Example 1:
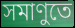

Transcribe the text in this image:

সমাণুতে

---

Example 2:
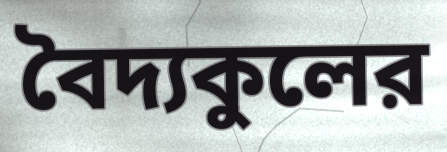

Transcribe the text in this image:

বৈদ্যকুলের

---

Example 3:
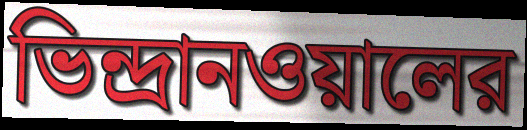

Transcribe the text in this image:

ভিন্দ্রানওয়ালের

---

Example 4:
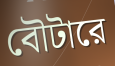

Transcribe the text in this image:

বৌটারে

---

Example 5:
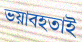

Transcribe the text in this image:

ভয়াবহতাই